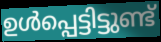
ഉൾപ്പെട്ടിട്ടുണ്ട്